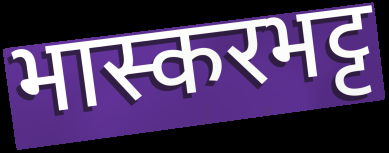
भास्करभट्ट